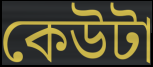
কেউটা